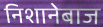
निशानेबाज